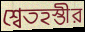
শ্বেতহস্তীর